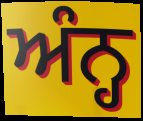
ਅੰਨ੍ਹ